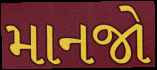
માનજો